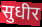
सुधीर